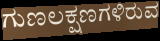
ಗುಣಲಕ್ಷಣಗಳಿರುವ